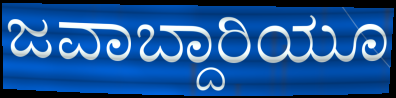
ಜವಾಬ್ದಾರಿಯೂ